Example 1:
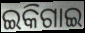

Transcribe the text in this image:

ଇକିଗାଇ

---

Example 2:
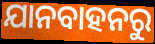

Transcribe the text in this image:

ଯାନବାହନରୁ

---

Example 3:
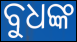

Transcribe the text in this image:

ବୁଧଙ୍କ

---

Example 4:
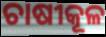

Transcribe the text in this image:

ଚାଷୀକୂଳ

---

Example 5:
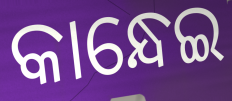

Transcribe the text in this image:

କାନ୍ଧେଇ